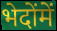
भेदोंमें